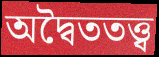
অদ্বৈততত্ত্ব